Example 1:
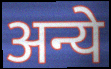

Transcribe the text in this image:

अन्ये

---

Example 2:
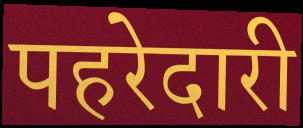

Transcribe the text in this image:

पहरेदारी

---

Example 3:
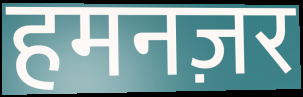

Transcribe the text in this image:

हमनज़र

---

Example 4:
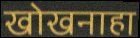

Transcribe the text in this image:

खोखनाहा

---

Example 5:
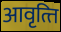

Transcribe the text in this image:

आवृत्‍ति